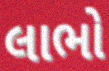
લાભો